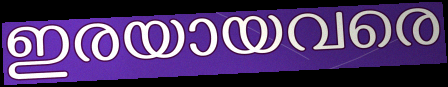
ഇരയായവരെ